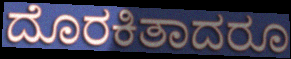
ದೊರಕಿತಾದರೂ